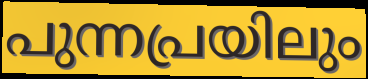
പുന്നപ്രയിലും